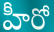
హీరో